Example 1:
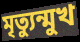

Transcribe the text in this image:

মৃত্যুন্মুখ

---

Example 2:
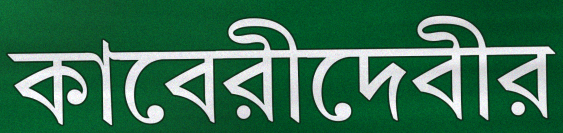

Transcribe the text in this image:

কাবেরীদেবীর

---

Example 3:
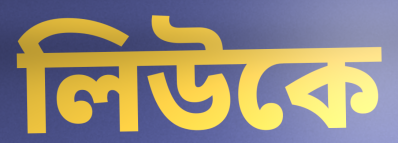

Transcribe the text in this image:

লিউকে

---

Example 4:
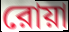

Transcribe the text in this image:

রোয়া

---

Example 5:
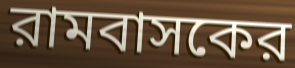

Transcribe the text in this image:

রামবাসকের